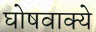
घोषवाक्ये